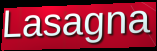
Lasagna